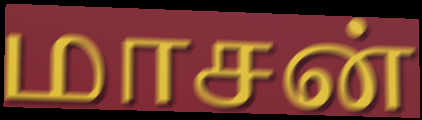
மாசன்